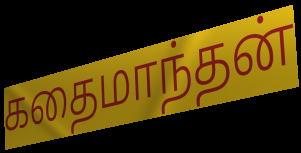
கதைமாந்தன்